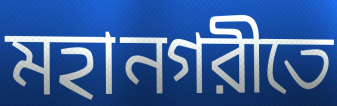
মহানগরীতে